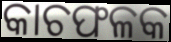
କାଚଫଳକ